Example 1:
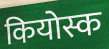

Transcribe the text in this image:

कियोस्क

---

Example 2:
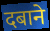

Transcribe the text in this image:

दबाने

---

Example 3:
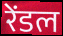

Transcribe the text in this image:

रेंडल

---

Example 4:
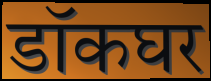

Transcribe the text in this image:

डॉकघर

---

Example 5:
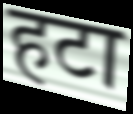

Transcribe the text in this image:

हटा